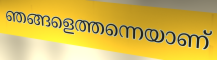
ഞങ്ങളെത്തന്നെയാണ്